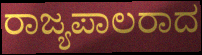
ರಾಜ್ಯಪಾಲರಾದ